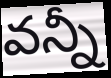
వన్నీ